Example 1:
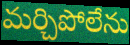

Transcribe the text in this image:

మర్చిపోలేను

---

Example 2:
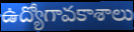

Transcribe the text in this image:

ఉద్యోగావకాశాలు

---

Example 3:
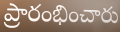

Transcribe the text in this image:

ప్రారంభించారు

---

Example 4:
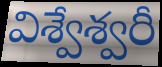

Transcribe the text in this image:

విశ్వేశ్వరీ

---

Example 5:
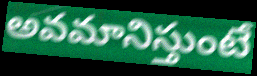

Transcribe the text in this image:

అవమానిస్తుంటే